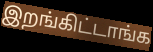
இறங்கிட்டாங்க